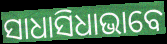
ସାଧାସିଧାଭାବେ